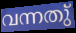
വന്നതു്